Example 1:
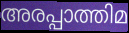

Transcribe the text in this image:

അരപ്പാത്തിമ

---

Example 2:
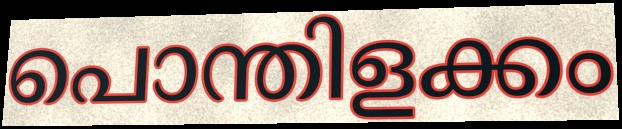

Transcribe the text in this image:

പൊന്തിളക്കം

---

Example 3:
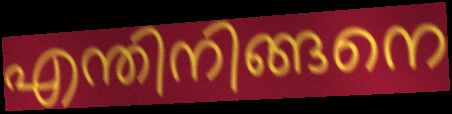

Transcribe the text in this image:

എന്തിനിങ്ങനെ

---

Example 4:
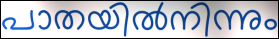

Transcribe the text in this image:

പാതയിൽനിന്നും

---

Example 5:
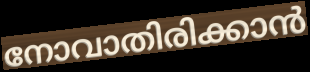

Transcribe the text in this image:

നോവാതിരിക്കാൻ